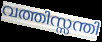
വത്തിസ്സന്തി